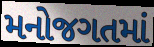
મનોજગતમાં